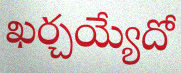
ఖర్చయ్యేదో